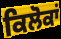
ਕਿਲੋਕਾਂ